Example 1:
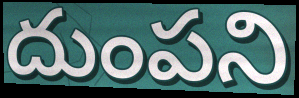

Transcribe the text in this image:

దుంపని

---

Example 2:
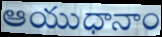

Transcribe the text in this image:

ఆయుధానాం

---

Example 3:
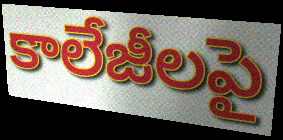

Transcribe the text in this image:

కాలేజీలపై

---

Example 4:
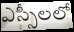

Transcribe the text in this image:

ఎస్సీలలో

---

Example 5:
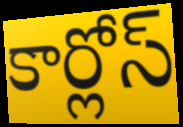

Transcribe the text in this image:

కార్లోస్